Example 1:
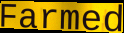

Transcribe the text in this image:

Farmed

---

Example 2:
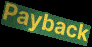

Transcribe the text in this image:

Payback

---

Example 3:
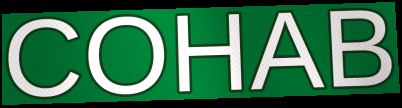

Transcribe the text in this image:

COHAB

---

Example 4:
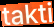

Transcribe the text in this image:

takti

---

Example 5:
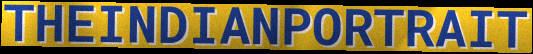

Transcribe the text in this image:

THEINDIANPORTRAIT